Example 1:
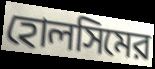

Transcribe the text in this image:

হোলসিমের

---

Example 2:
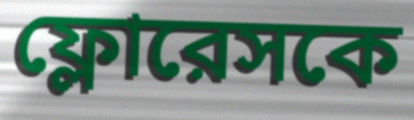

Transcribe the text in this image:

ফ্লোরেসকে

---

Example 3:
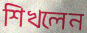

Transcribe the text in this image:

শিখলেন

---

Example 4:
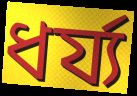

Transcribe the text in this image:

ধর্য্য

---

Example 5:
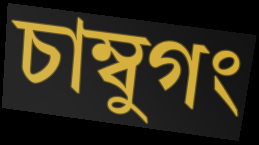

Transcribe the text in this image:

চাম্বুগং